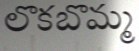
లొకబొమ్మ